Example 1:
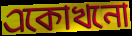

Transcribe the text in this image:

একোখনো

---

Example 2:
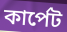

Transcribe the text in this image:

কাৰ্পেট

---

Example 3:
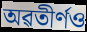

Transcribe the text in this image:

অৱতীৰ্ণও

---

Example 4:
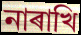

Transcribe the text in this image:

নাৰাখি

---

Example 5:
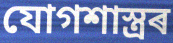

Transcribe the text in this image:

যোগশাস্ত্ৰৰ